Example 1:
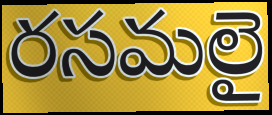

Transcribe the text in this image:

రసమలై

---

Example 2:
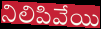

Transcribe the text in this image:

నిలిపివేయి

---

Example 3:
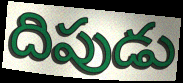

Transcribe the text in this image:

దిపుడు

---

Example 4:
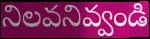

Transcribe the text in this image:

నిలవనివ్వండి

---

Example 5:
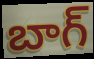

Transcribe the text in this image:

బాగ్